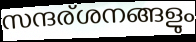
സന്ദര്ശനങ്ങളും